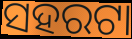
ସହରଟା